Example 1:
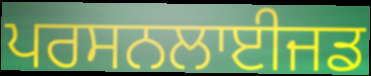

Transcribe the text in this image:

ਪਰਸਨਲਾਈਜਡ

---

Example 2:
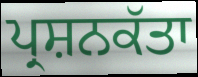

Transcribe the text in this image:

ਪ੍ਰਸ਼ਨਕੱਤਾ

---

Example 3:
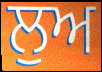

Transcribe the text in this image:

ਲੁਅ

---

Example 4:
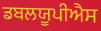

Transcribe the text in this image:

ਡਬਲਯੂਪੀਐਸ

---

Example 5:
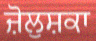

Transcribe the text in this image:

ਜ਼ੋਲੁਸ਼ਕਾ